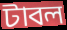
টাবল